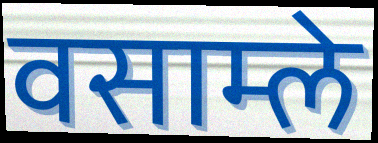
वसाम्ले